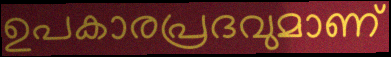
ഉപകാരപ്രദവുമാണ്